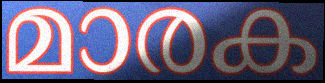
മാരക